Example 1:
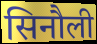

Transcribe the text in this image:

सिनौली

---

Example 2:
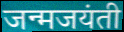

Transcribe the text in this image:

जन्मजयंती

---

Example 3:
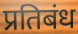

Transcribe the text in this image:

प्रतिबंध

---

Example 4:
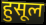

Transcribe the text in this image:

हुसूल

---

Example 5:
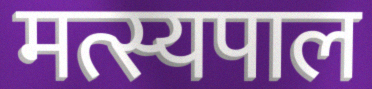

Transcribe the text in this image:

मत्स्यपाल